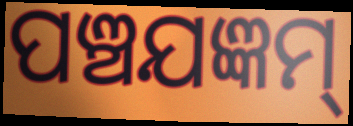
ପଞ୍ଚଯଜ୍ଞମ୍